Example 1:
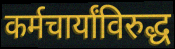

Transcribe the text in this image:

कर्मचार्यांविरुद्ध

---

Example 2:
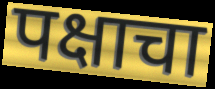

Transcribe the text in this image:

पक्षाचा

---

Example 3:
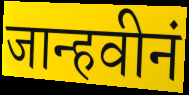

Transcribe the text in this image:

जान्हवीनं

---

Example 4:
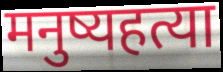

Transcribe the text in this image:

मनुष्यहत्या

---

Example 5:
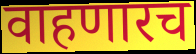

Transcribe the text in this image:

वाहणारच